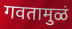
गवतामुळं